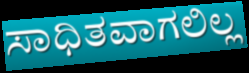
ಸಾಧಿತವಾಗಲಿಲ್ಲ